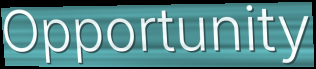
Opportunity